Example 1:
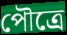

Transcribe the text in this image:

পৌত্রে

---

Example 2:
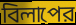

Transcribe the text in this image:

বিলাপের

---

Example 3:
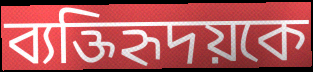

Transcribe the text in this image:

ব্যক্তিহৃদয়কে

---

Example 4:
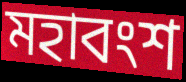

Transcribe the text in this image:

মহাবংশ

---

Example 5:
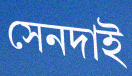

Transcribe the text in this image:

সেনদাই